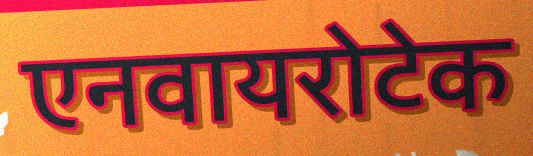
एनवायरोटेक